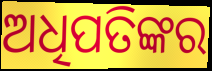
ଅଧିପତିଙ୍କର